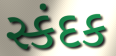
સ્કંદક